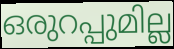
ഒരുറപ്പുമില്ല